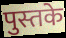
पुस्‍तके